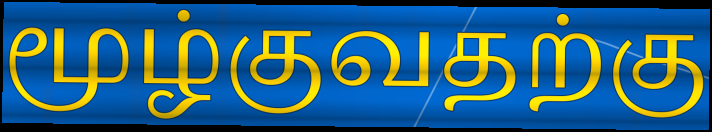
மூழ்குவதற்கு